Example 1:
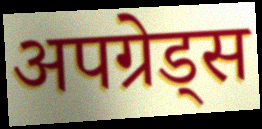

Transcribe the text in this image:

अपग्रेड्स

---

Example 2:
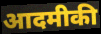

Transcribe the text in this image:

आदमीकी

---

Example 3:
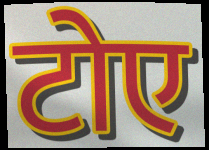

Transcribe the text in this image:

टोए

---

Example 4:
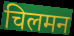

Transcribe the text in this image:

चिलमन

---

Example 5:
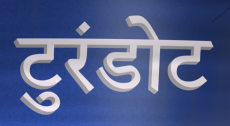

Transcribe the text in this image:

टुरंडोट